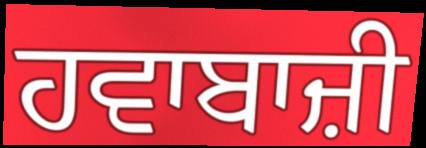
ਹਵਾਬਾਜ਼ੀ